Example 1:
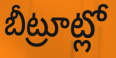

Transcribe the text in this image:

బీట్రూట్లో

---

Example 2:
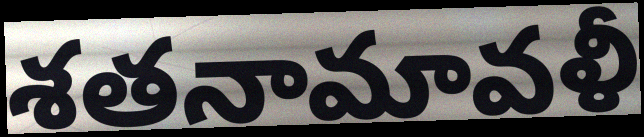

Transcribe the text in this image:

శతనామావళీ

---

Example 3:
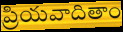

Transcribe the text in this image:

ప్రియవాదితాం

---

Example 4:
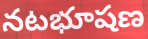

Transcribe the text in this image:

నటభూషణ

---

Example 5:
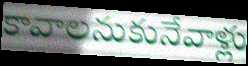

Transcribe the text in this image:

కావాలనుకునేవాళ్లు